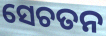
ସେଚତନ